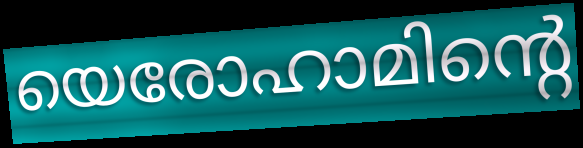
യെരോഹാമിന്റെ